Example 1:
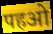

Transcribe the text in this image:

पहओ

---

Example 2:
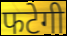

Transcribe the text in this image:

फटेगी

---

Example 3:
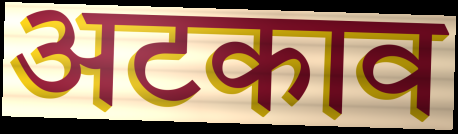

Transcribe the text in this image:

अटकाव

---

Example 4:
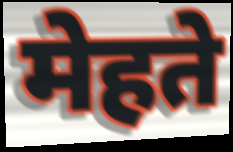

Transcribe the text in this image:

मेहते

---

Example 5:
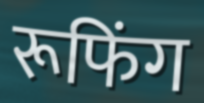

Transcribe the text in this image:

रूफिंग